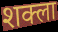
शक्ला